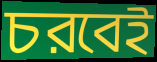
চরবেই